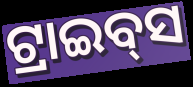
ଟ୍ରାଇବ୍‌ସ